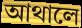
আথালে